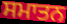
ਸਮਾਤਨ